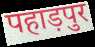
पहाड़पुर